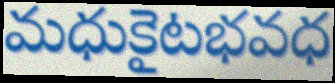
మధుకైటభవధ